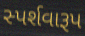
સ્પર્શવારૂપ